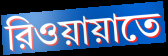
রিওয়ায়াতে